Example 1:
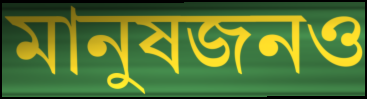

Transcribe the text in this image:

মানুষজনও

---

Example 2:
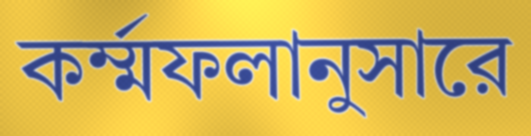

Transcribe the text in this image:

কর্ম্মফলানুসারে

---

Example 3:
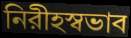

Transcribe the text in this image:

নিরীহস্বভাব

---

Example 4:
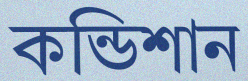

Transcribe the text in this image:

কন্ডিশান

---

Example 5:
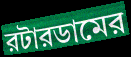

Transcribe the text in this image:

রটারডামের